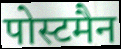
पोस्टमैन